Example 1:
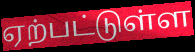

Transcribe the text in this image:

ஏற்பட்டுள்ள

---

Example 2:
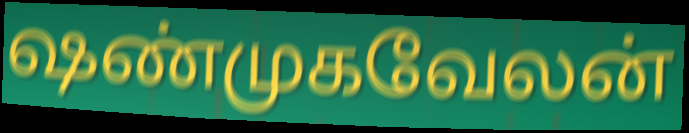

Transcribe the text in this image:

ஷண்முகவேலன்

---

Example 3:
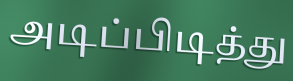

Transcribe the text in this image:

அடிப்பிடித்து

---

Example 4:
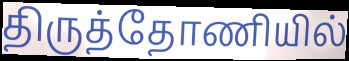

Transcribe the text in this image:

திருத்தோணியில்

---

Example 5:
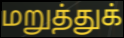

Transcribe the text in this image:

மறுத்துக்